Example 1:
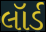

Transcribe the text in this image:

લૉર્ડ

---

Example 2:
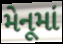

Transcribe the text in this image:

મેનૂમાં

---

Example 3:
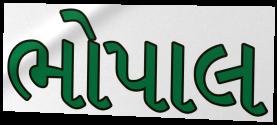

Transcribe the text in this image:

ભોપાલ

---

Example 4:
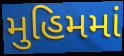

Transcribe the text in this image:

મુહિમમાં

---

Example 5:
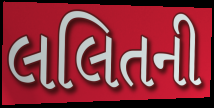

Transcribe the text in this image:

લલિતની